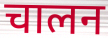
चालन